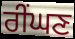
ਰੀਂਘਣ